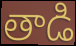
తాడి